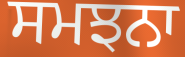
ਸਮਝਨਾ